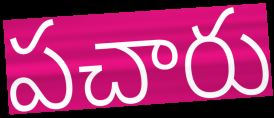
పచారు